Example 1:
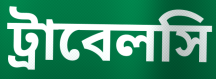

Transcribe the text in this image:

ট্রাবেলসি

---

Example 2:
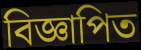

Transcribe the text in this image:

বিজ্ঞাপিত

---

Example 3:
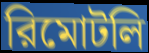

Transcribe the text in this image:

রিমোটলি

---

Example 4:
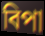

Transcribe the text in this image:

বিপা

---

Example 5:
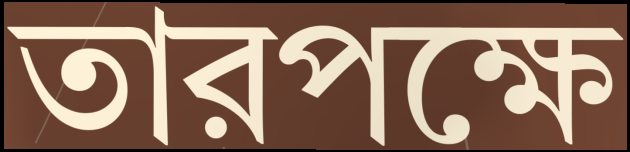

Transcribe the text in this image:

তারপক্ষে